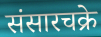
संसारचक्रे